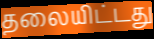
தலையிட்டது